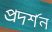
প্রদর্শন